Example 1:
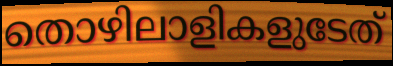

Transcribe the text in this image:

തൊഴിലാളികളുടേത്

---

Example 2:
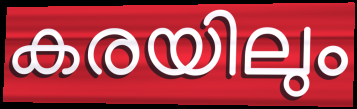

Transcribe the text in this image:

കരയിലും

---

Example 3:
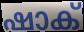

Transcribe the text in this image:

ഷാക്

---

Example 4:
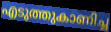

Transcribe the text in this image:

എടുത്തുകാണിച്ച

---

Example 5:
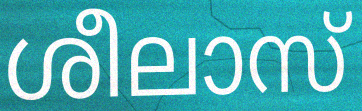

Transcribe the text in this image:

ശീലാസ്